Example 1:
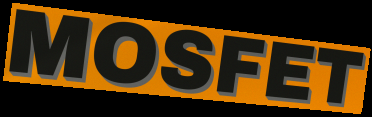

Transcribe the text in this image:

MOSFET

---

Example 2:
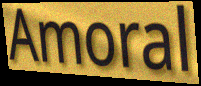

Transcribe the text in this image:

Amoral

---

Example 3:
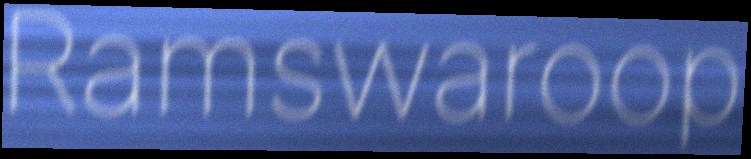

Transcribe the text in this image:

Ramswaroop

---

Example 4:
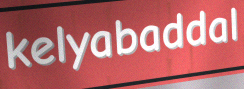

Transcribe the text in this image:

kelyabaddal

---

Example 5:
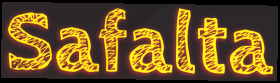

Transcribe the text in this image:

Safalta